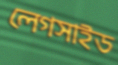
লেগসাইড